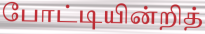
போட்டியின்றித்